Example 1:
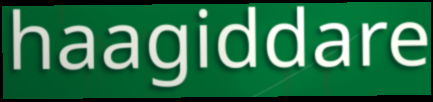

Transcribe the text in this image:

haagiddare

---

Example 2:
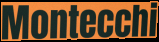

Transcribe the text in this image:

Montecchi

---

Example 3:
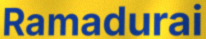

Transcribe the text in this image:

Ramadurai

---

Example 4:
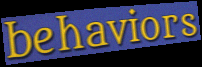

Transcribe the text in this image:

behaviors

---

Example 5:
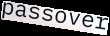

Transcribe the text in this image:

passover